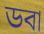
ডবা